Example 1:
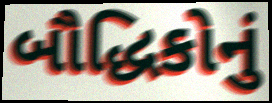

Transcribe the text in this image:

બૌદ્ધિકોનું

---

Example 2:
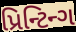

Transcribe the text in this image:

પ્રિન્ટિન્ગ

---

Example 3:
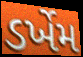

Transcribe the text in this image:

ડર્ખેમ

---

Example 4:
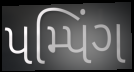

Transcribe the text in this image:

પમ્પિંગ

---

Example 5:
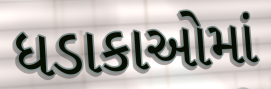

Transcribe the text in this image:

ધડાકાઓમાં